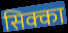
सिक्‍का